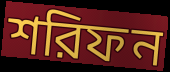
শরিফন